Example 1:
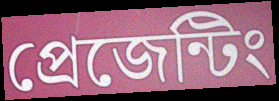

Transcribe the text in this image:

প্রেজেন্টিং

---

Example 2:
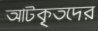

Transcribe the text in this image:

আটকৃতদের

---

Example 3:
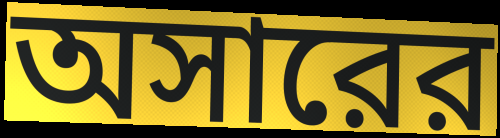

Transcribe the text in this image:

অসারের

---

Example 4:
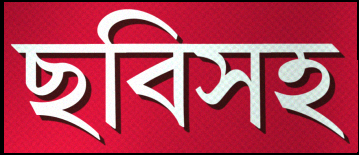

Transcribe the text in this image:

ছবিসহ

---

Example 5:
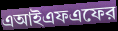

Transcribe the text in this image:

এআইএফএফের